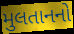
મુલતાનનો